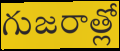
గుజరాత్లో